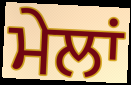
ਮੇਲਾਂ